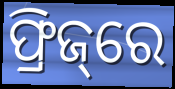
ଫ୍ରିଜ୍‌ରେ